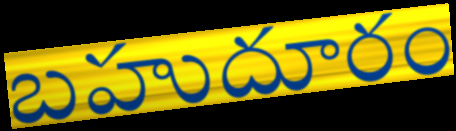
బహుదూరం